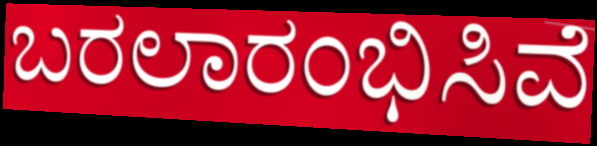
ಬರಲಾರಂಭಿಸಿವೆ